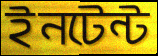
ইনটেন্ট